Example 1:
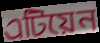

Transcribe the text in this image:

এটিয়েন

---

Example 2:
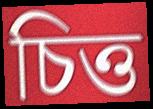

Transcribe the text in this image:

চিত্ত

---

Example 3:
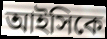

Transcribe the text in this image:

আইসিকে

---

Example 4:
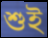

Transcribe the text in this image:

শুই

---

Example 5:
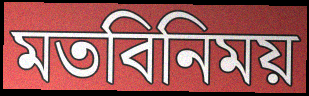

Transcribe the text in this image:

মতবিনিময়